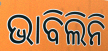
ଭାବିଲିନି